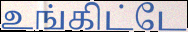
உங்கிட்டே